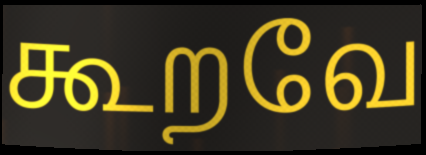
கூறவே